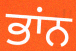
ਭਾਂਨ